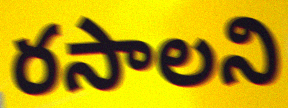
రసాలని